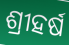
ଶ୍ରୀହର୍ଷ